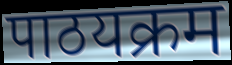
पाठयक्रम